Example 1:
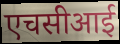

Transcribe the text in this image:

एचसीआई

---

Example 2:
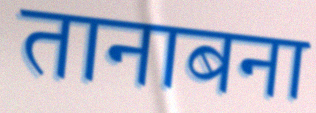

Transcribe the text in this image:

तानाबना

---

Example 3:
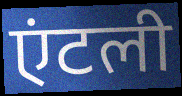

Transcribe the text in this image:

एंटली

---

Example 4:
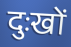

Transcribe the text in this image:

दुःखों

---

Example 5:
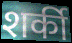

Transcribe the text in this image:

शर्की